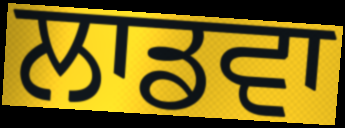
ਲਾਡਵਾ